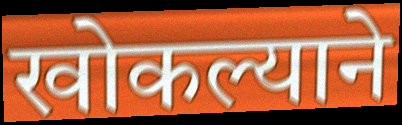
खोकल्याने